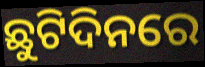
ଛୁଟିଦିନରେ